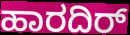
ಹಾರದಿರ್